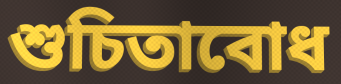
শুচিতাবোধ